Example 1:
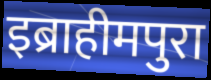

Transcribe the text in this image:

इब्राहीमपुरा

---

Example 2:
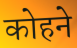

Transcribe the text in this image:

कोहने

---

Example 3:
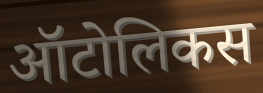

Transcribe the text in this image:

ऑटोलिकस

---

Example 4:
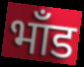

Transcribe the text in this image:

भाँड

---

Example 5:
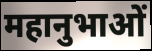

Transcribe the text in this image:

महानुभाओं